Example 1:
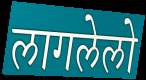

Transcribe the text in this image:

लागलेलो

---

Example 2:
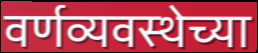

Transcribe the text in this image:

वर्णव्यवस्थेच्या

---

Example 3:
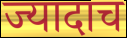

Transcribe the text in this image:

ज्यादाच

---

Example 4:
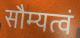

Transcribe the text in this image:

सौम्यत्वं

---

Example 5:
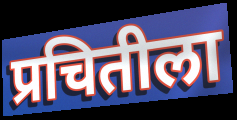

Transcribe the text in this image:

प्रचितीला